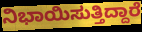
ನಿಭಾಯಿಸುತ್ತಿದ್ದಾರೆ